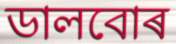
ডালবোৰ